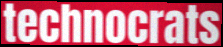
technocrats